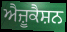
ਐਜ਼ੂਕੈਸ਼ਨ